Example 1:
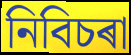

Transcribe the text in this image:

নিবিচৰা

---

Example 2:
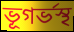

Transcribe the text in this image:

ভূগৰ্ভস্থ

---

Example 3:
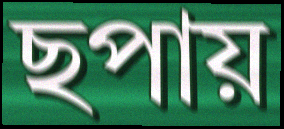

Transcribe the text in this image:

ছপায়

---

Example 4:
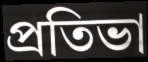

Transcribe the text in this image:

প্ৰতিভা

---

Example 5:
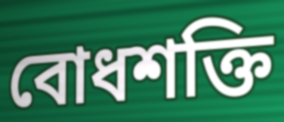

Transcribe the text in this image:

বোধশক্তি